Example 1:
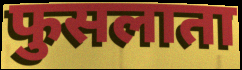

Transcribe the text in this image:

फुसलाता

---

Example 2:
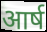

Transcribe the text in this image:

आर्ष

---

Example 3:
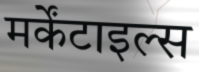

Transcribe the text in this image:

मर्केंटाइल्स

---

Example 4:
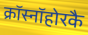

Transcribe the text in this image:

क्रॉस्नॉहोरकै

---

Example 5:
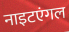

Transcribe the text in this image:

नाइटएंगल